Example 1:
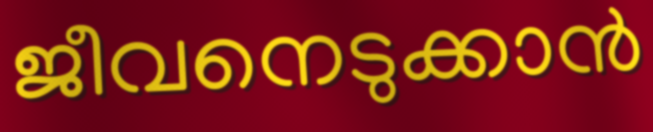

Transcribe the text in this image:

ജീവനെടുക്കാൻ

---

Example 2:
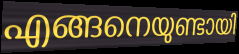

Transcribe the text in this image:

എങ്ങനെയുണ്ടായി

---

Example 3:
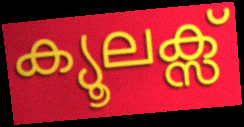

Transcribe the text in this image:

ക്യൂലക്സ്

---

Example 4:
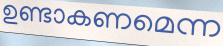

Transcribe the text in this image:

ഉണ്ടാകണമെന്ന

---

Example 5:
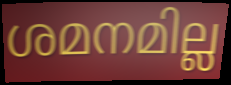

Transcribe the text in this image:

ശമനമില്ല